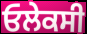
ਓਲੇਕਸੀ